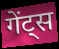
गेंट्स